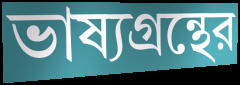
ভাষ্যগ্রন্থের